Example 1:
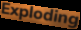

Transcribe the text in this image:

Exploding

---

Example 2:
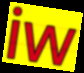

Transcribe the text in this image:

iw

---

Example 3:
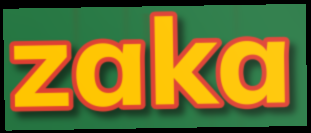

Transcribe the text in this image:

zaka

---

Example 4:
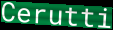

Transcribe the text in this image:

Cerutti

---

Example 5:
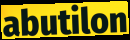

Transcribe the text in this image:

abutilon